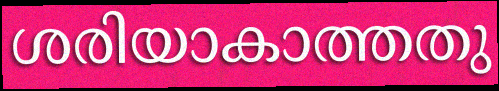
ശരിയാകാത്തതു